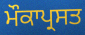
ਮੌਕਾਪ੍ਰਸਤ